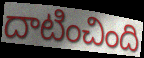
దాటించింది